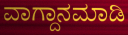
ವಾಗ್ದಾನಮಾಡಿ